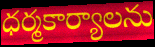
ధర్మకార్యాలను